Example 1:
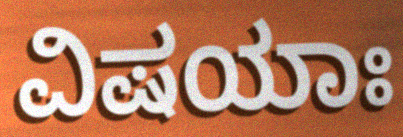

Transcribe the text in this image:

ವಿಷಯಾಃ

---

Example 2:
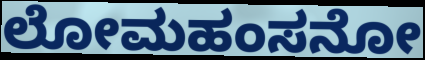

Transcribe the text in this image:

ಲೋಮಹಂಸನೋ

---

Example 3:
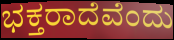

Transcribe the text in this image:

ಭಕ್ತರಾದೆವೆಂದು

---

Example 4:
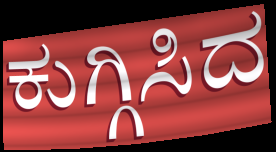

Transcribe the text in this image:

ಕುಗ್ಗಿಸಿದ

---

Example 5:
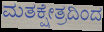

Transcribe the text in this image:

ಮತಕ್ಷೇತ್ರದಿಂದ